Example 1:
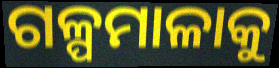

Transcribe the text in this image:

ଗଳ୍ପମାଳାକୁ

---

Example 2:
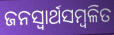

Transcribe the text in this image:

ଜନସ୍ବାର୍ଥସମ୍ବଳିତ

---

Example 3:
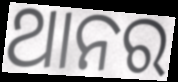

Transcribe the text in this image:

ଥାନର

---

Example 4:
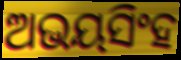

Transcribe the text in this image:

ଅଭୟସିଂହ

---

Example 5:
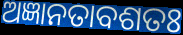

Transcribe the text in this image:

ଅଜ୍ଞାନତାବଶତଃ